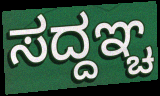
ಸದ್ದಞ್ಚ